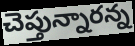
చెప్తున్నారన్న